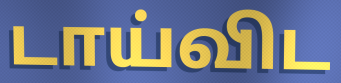
டாய்விட